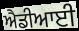
ਐਡੀਆਈ